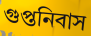
গুপ্তনিবাস